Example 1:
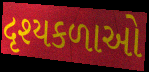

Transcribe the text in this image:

દૃશ્યકળાઓ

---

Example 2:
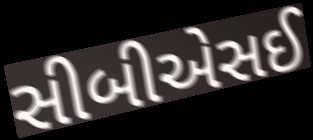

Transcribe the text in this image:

સીબીએસઈ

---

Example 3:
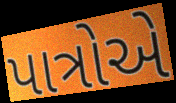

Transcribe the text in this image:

પાત્રોએ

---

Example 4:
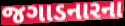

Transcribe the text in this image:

જગાડનારના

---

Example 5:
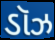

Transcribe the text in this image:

ડૉઝ